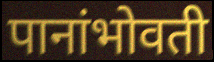
पानांभोवती